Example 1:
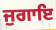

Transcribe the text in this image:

ਜੁਗਾਇ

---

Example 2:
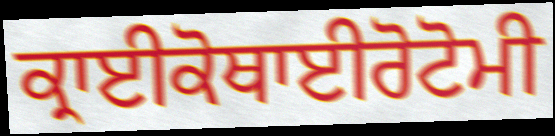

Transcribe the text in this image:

ਕ੍ਰਾਈਕੋਥਾਈਰੋਟੋਮੀ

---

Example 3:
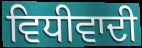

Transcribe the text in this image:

ਵਿਧੀਵਾਦੀ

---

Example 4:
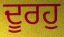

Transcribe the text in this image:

ਦੂਰਹੁ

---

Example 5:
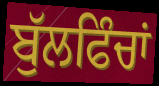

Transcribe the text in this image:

ਬੁੱਲਫਿੰਚਾਂ